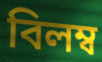
বিলম্ব